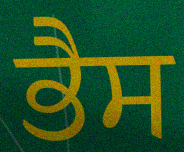
ਭੈਸ